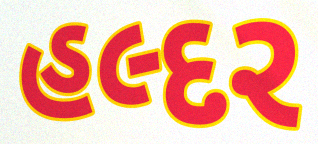
હલ્દર